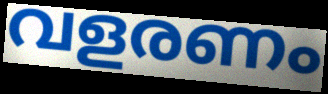
വളരണം